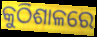
କୁଠିଶାଳରେ